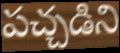
పచ్చడిని